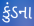
કુંડના